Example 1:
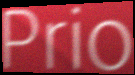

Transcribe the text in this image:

Prio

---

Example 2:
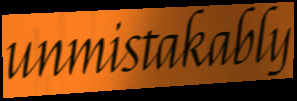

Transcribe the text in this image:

unmistakably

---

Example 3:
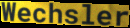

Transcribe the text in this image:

Wechsler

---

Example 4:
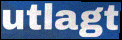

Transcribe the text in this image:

utlagt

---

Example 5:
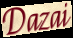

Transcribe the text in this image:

Dazai